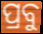
ପ୍ରବୁ